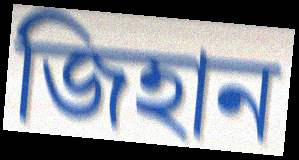
জিহান